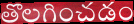
తొలగించడం